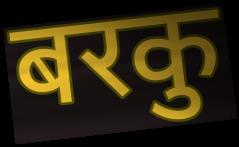
बरकु